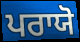
ਪਰਾਯੋ